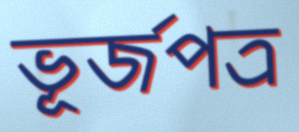
ভূর্জপত্র